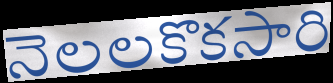
నెలలకొకసారి